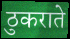
ठुकराते